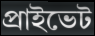
প্ৰাইভেট